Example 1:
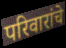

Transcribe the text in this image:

परिवारांचे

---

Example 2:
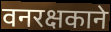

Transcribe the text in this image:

वनरक्षकाने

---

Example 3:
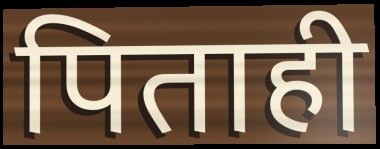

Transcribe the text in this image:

पिताही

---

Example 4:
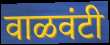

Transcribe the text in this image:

वाळवंटी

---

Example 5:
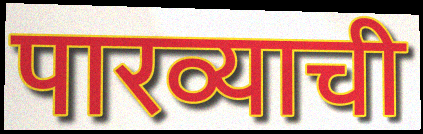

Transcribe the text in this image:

पारव्याची